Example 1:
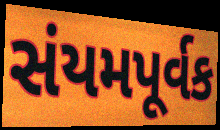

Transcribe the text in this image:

સંયમપૂર્વક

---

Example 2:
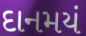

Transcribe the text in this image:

દાનમયં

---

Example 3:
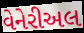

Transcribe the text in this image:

વેનેરીઅલ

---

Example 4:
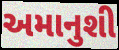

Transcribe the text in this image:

અમાનુશી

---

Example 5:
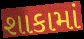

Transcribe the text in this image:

શાકામાં